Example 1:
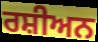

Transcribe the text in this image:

ਰਸ਼ੀਅਨ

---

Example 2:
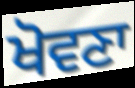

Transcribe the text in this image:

ਖੋਵਣਾ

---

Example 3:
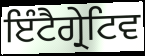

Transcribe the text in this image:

ਇੰਟੈਗ੍ਰੇਟਿਵ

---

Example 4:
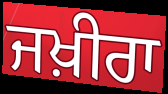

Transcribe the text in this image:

ਜਖ਼ੀਰਾ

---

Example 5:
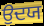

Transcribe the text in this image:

ਉਦਯ